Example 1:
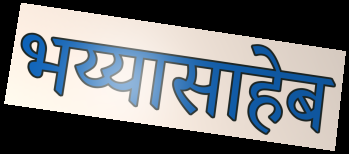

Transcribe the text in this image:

भय्यासाहेब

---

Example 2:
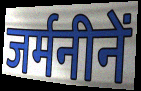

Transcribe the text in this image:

जर्मनीनें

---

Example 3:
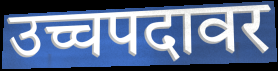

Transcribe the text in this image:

उच्चपदावर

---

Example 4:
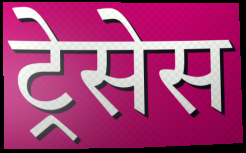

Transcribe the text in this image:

ट्रेसेस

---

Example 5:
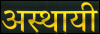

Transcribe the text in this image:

अस्थायी